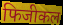
फिजीकल